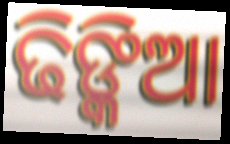
ଢିଙ୍କିଆ